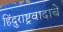
हिंदुराष्ट्रवादाचे